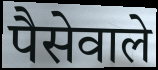
पैसेवाले